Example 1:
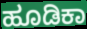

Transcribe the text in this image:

ಹೂಡಿಕಾ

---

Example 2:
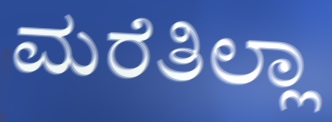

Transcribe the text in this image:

ಮರೆತಿಲ್ಲಾ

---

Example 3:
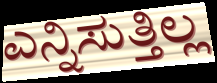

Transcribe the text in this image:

ಎನ್ನಿಸುತ್ತಿಲ್ಲ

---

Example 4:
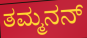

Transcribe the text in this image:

ತಮ್ಮನನ್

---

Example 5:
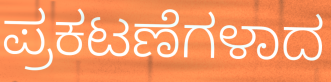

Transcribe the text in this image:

ಪ್ರಕಟಣೆಗಳಾದ